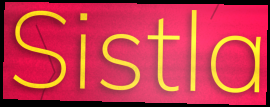
Sistla